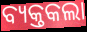
ବ୍ୟକ୍ତକଲା